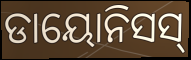
ଡାୟୋନିସସ୍